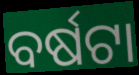
ବର୍ଷଟା